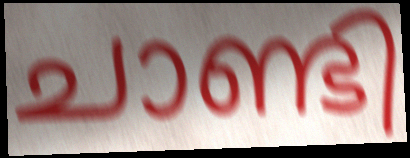
ചാണ്ടി